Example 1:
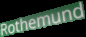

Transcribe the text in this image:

Rothemund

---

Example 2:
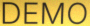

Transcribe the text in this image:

DEMO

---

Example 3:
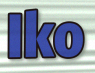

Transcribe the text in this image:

Iko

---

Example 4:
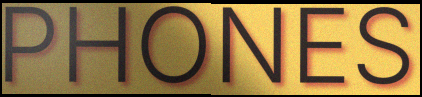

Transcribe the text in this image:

PHONES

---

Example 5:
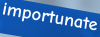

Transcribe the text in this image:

importunate